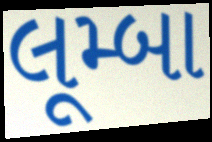
લૂમ્બા